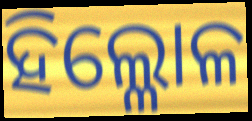
ହିଲ୍ଳୋଳ